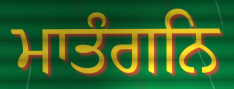
ਮਾਤੰਗਨਿ